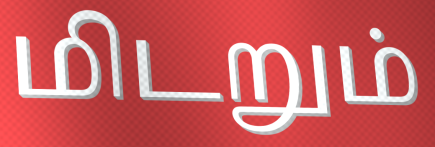
மிடறும்